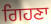
ਗਿਹਣਾ